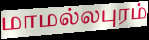
மாமல்லபுரம்